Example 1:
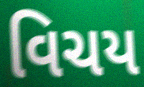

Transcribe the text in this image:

વિચય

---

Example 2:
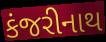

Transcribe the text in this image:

કંજરીનાથ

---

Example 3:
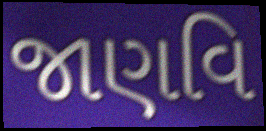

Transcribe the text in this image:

જાણવિ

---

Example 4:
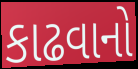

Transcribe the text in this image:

કાઢવાનો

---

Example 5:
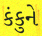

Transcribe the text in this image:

કંકુને